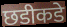
छडीकडे